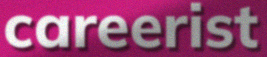
careerist